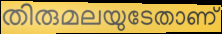
തിരുമലയുടേതാണ്